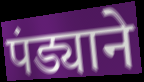
पंड्याने